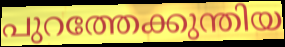
പുറത്തേക്കുന്തിയ